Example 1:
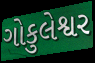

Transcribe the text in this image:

ગોકુલેશ્વર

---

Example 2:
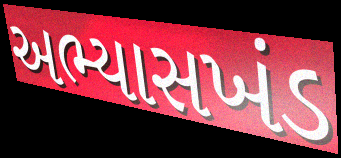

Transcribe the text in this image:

અભ્યાસખંડ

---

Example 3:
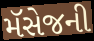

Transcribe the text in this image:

મૅસેજની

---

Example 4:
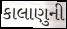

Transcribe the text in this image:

કાલાણુની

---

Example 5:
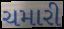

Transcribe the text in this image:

ચમારી